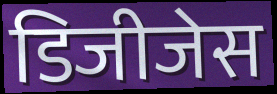
डिजीजेस